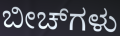
ಬೀಚ್‌ಗಳು